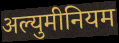
अल्युमीनियम